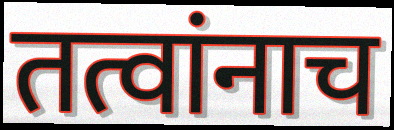
तत्वांनाच